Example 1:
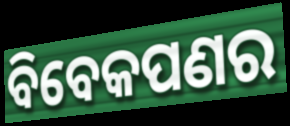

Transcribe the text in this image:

ବିବେକପଣର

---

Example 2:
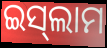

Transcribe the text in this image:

ଇସ୍‌ଲାମ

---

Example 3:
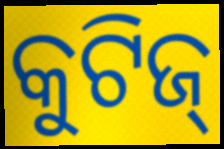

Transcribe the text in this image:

କୁଟିଜ୍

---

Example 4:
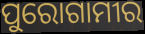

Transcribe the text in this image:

ପୁରୋଗାମୀର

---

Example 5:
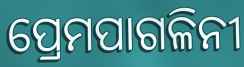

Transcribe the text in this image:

ପ୍ରେମପାଗଳିନୀ